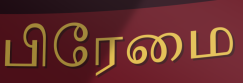
பிரேமை